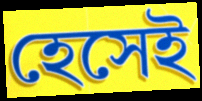
হেসেই